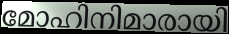
മോഹിനിമാരായി